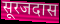
सूरजदास